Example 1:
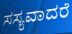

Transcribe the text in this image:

ಸಸ್ಯವಾದರೆ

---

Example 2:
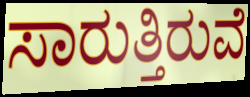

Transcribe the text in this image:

ಸಾರುತ್ತಿರುವೆ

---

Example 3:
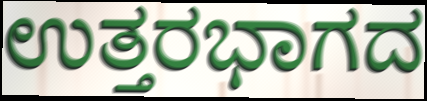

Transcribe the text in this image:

ಉತ್ತರಭಾಗದ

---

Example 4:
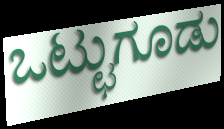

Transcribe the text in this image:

ಒಟ್ಟುಗೂಡು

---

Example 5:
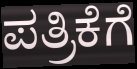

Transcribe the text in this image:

ಪತ್ರಿಕೆಗೆ